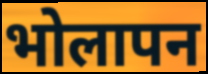
भोलापन